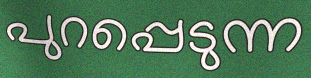
പുറപ്പെടുന്ന